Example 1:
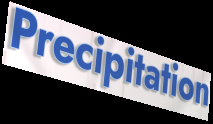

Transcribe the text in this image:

Precipitation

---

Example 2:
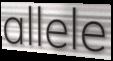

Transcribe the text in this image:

allele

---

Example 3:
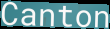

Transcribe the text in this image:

Canton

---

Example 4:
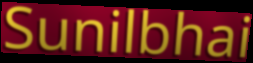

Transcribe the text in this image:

Sunilbhai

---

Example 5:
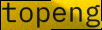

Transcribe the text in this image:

topeng